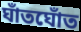
ঘাঁতঘোঁত